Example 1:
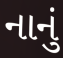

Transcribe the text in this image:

નાનું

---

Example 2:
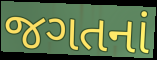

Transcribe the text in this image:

જગતનાં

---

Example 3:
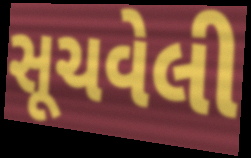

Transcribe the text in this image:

સૂચવેલી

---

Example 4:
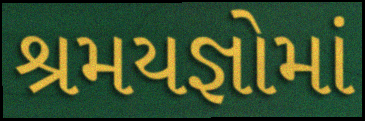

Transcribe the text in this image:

શ્રમયજ્ઞોમાં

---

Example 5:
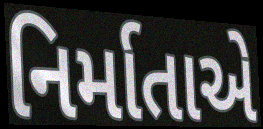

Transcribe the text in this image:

નિર્માતાએ